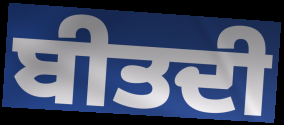
ਬੀਤਦੀ